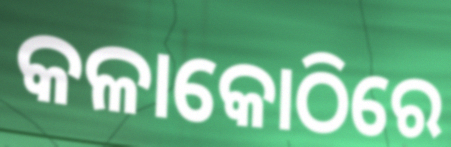
କଳାକୋଠିରେ